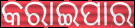
କରାଇପାର